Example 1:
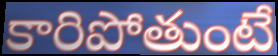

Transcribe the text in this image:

కారిపోతుంటే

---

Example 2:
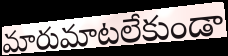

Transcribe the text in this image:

మారుమాటలేకుండా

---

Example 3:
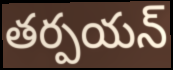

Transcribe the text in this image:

తర్పయన్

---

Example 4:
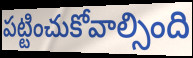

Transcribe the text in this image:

పట్టించుకోవాల్సింది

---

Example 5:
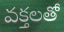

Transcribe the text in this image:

వక్తలతో